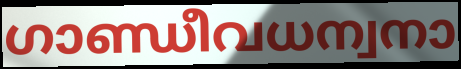
ഗാണ്ഡീവധന്വനാ